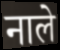
नाले